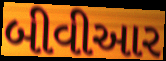
બીવીઆર